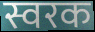
स्वरक